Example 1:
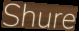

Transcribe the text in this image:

Shure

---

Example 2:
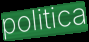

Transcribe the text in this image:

politica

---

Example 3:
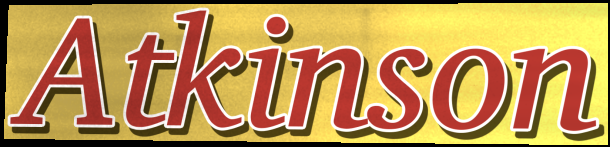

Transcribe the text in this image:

Atkinson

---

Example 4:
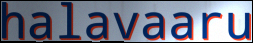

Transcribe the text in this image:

halavaaru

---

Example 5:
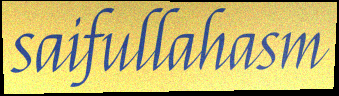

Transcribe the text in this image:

saifullahasm